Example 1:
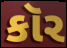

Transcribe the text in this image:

કૉર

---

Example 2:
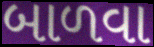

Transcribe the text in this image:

બાળવા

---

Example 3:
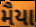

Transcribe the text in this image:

મૈયા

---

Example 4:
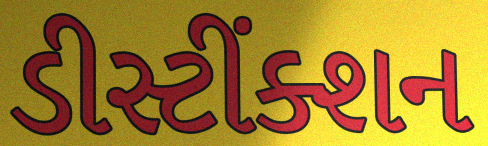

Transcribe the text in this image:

ડીસ્ટીંક્શન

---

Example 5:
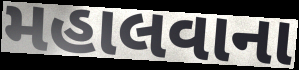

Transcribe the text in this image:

મહાલવાના